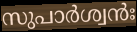
സുപാർശ്വൻഃ